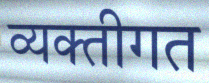
व्यक्तीगत